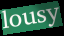
lousy